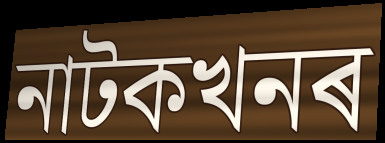
নাটকখনৰ